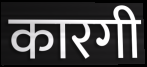
कारगी